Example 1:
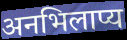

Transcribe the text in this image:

अनभिलाप्य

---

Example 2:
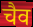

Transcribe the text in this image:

चैव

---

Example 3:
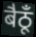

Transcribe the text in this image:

बैठूँ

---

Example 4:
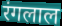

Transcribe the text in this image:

रंगलाल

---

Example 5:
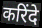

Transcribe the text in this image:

करिंदे